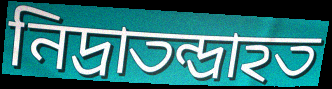
নিদ্রাতন্দ্রাহত